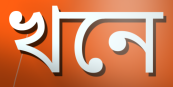
খনে